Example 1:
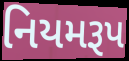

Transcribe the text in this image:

નિયમરૂપ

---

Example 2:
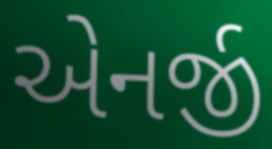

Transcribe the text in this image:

એનર્જી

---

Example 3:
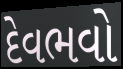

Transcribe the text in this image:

દેવભવો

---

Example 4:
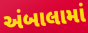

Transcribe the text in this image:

અંબાલામાં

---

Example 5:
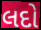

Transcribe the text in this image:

લદો